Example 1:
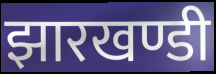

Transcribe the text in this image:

झारखण्डी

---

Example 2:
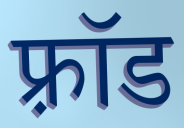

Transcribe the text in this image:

फ़्रॉड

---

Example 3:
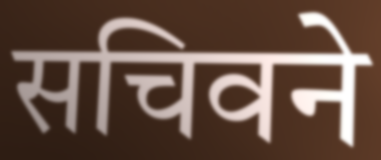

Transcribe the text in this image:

सचिवने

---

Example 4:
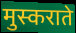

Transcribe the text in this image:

मुस्कराते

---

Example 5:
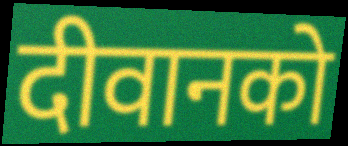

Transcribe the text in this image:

दीवानको